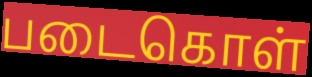
படைகொள்